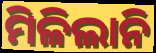
ମିଳିଲାନି